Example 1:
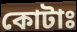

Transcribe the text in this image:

কোটাঃ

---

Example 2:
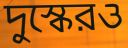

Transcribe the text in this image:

দুস্কেরও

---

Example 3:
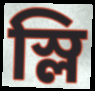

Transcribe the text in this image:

স্লি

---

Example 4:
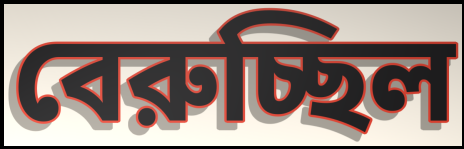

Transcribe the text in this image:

বেরুচ্ছিল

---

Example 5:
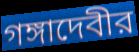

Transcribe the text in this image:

গঙ্গাদেবীর